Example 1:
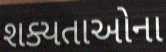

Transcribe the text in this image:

શક્યતાઓના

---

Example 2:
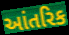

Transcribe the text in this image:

આંતરિક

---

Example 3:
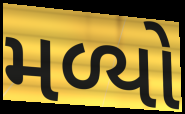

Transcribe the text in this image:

મળ્યો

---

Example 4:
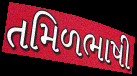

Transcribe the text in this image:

તમિળભાષી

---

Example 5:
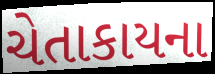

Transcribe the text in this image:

ચેતાકાયના